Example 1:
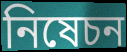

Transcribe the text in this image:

নিষেচন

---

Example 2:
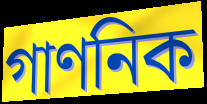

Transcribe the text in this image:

গাণনিক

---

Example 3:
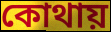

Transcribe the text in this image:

কোথায়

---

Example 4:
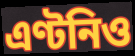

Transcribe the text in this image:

এণ্টনিও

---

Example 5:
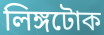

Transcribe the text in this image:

লিঙ্গটোক